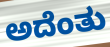
ಅದೆಂತು